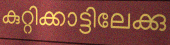
കുറ്റിക്കാട്ടിലേക്കു